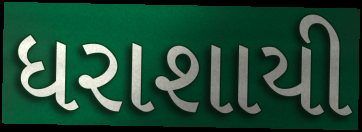
ધરાશાયી